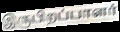
இருபிறப்பாளர்